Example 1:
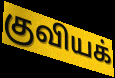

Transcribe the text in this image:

குவியக்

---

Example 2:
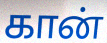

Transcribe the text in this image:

கான்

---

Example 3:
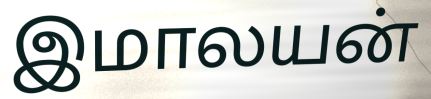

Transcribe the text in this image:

இமாலயன்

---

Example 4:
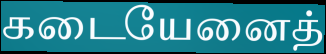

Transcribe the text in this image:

கடையேனைத்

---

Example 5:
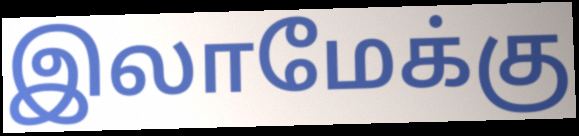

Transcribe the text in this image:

இலாமேக்கு